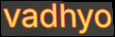
vadhyo